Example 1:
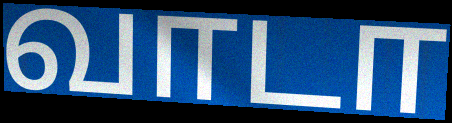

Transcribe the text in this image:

வாடா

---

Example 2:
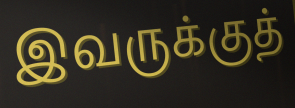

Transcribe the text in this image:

இவருக்குத்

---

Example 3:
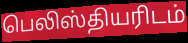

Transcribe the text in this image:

பெலிஸ்தியரிடம்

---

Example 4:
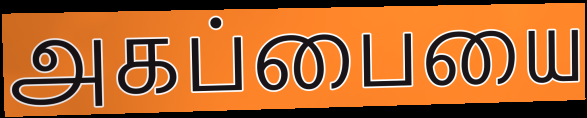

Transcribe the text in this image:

அகப்பையை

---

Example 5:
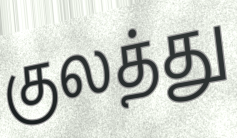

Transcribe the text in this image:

குலத்து